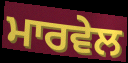
ਮਾਰਵੇਲ